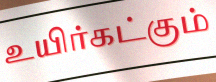
உயிர்கட்கும்